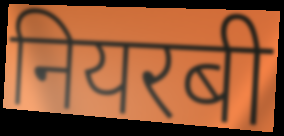
नियरबी